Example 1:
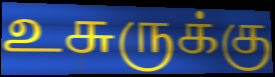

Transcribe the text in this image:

உசுருக்கு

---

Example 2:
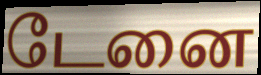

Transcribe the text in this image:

டேனை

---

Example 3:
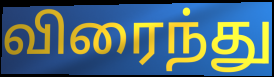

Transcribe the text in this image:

விரைந்து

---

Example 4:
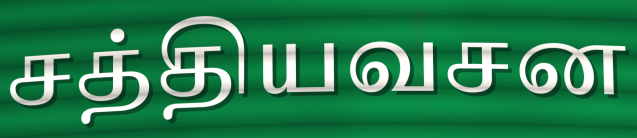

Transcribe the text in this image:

சத்தியவசன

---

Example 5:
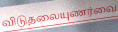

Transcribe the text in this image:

விடுதலையுணர்வை